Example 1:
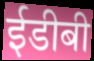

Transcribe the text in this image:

ईडीबी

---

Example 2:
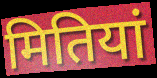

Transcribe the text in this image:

मितियां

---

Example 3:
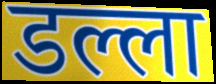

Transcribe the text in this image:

डल्ला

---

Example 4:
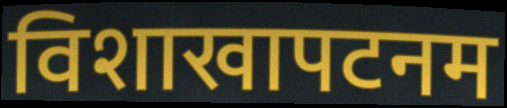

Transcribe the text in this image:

विशाखापटनम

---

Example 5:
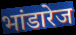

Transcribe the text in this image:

भांडारेज